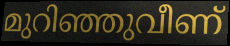
മുറിഞ്ഞുവീണ്